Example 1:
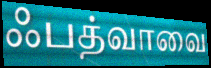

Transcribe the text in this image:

ஃபத்வாவை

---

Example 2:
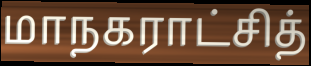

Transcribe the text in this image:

மாநகராட்சித்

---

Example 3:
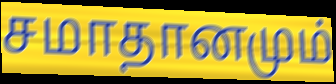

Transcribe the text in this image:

சமாதானமும்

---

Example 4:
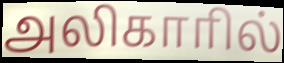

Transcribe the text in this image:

அலிகாரில்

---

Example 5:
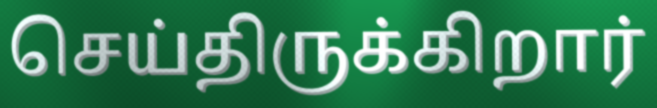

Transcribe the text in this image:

செய்திருக்கிறார்